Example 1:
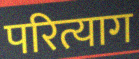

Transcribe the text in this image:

परित्याग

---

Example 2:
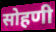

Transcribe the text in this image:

सोहणी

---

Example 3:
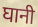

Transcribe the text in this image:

घानी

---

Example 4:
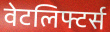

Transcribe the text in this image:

वेटलिफ्टर्स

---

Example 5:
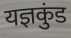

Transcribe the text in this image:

यज्ञकुंड